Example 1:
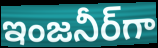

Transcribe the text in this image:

ఇంజనీర్‌గా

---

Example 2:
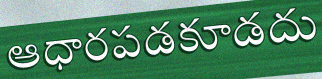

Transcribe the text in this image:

ఆధారపడకూడదు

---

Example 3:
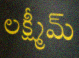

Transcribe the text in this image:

లక్ష్మీమ్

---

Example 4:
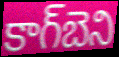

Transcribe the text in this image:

కాగ్‌బెని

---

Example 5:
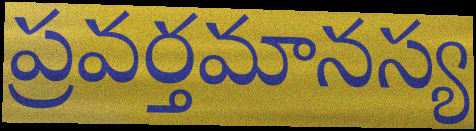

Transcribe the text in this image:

ప్రవర్తమానస్య